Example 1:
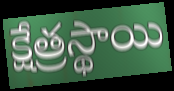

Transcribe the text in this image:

క్షేత్రస్థాయి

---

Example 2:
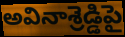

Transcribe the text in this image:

అవినాశ్రెడ్డిపై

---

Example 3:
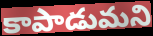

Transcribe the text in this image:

కాపాడుమని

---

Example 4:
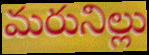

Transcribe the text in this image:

మరునిల్లు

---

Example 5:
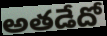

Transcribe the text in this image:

అతడేదో